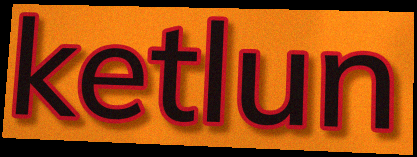
ketlun